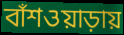
বাঁশওয়াড়ায়